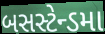
બસસ્ટેન્ડમા